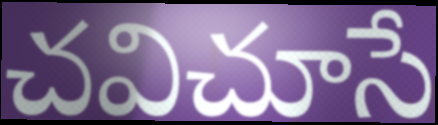
చవిచూసే